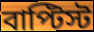
বাপ্টিস্ট